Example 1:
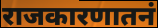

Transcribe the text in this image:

राजकारणातनं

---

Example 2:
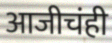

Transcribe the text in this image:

आजीचंही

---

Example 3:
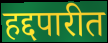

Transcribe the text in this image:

हद्दपारीत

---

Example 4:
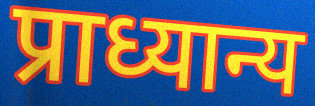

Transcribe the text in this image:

प्राध्यान्य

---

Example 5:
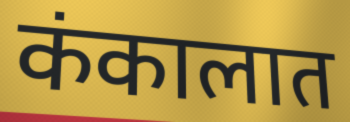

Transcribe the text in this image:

कंकालात